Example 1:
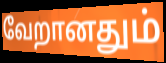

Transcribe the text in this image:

வேறானதும்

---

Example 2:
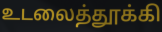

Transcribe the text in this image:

உடலைத்தூக்கி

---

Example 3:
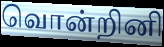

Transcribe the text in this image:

வொன்றினி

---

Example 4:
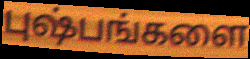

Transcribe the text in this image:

புஷ்பங்களை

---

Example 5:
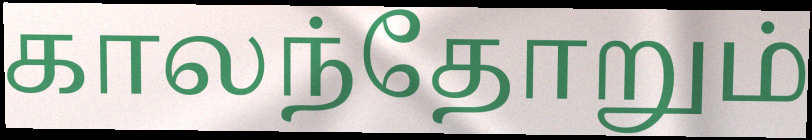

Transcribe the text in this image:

காலந்தோறும்